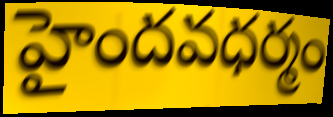
హైందవధర్మం